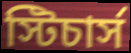
স্টিচার্স